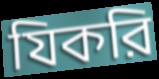
যিকরি